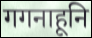
गगनाहूनि